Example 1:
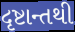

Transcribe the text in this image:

દૃષ્ટાન્તથી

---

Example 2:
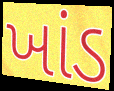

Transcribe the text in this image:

ખાંડ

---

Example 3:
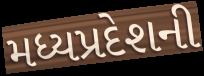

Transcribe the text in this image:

મધ્યપ્રદેશની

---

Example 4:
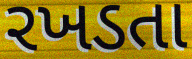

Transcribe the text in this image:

રખડતા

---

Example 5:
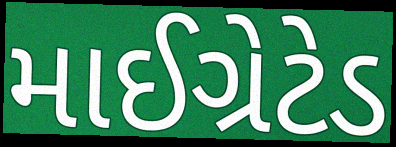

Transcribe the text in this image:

માઈગ્રેટેડ